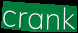
crank